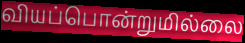
வியப்பொன்றுமில்லை